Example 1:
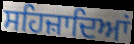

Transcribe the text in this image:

ਸਹਿਜ਼ਾਦਿਆਂ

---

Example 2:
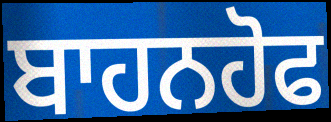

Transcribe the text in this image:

ਬਾਹਨਹੋਫ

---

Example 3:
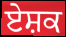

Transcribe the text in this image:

ਏਸ਼ਕ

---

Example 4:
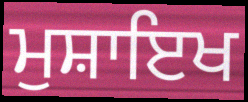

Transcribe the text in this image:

ਮੁਸ਼ਾਇਖ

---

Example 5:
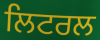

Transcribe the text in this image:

ਲਿਟਰਲ